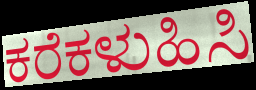
ಕರೆಕಳುಹಿಸಿ